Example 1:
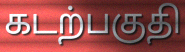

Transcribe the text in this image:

கடற்பகுதி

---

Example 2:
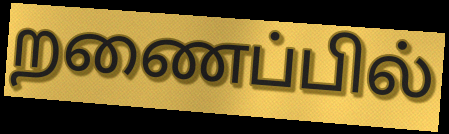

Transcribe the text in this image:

றணைப்பில்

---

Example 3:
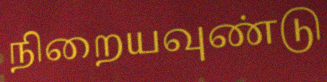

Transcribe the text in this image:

நிறையவுண்டு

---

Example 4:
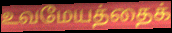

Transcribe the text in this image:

உவமேயத்தைக்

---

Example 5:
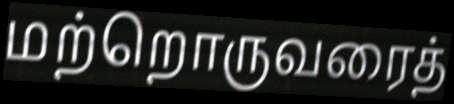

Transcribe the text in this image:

மற்றொருவரைத்